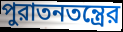
পুরাতনতন্ত্রের